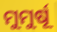
ମୁମୁର୍ଷୂ